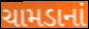
ચામડાનાં